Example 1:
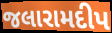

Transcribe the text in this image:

જલારામદીપ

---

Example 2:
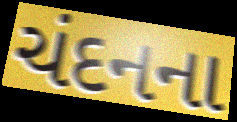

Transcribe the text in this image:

ચંદનના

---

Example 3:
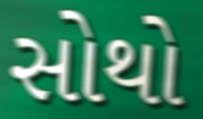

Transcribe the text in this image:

સોથો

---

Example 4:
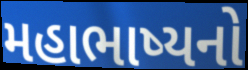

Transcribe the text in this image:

મહાભાષ્યનો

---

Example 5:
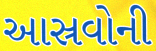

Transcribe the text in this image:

આસ્રવોની